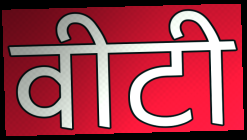
वीटी